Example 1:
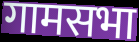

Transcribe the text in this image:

गामसभा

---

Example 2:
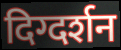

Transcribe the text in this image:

दिग्दर्शन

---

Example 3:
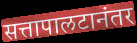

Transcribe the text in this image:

सत्तापालटानंतर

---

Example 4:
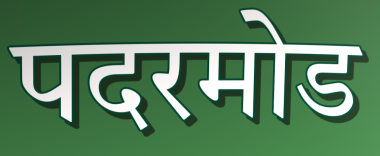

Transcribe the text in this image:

पदरमोड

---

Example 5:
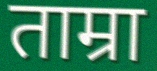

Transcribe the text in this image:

ताम्रा